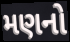
મણનો